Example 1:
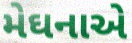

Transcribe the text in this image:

મેઘનાએ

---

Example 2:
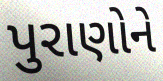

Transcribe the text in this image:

પુરાણોને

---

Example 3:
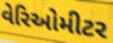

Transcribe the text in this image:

વેરિઓમીટર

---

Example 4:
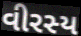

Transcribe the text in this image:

વીરસ્ય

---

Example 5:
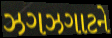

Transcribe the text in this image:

ઝગઝગાટને